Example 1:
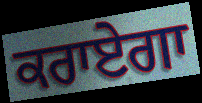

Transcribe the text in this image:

ਕਰਾਏਗਾ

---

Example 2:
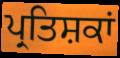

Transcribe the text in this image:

ਪ੍ਰਤਿਸ਼ਕਾਂ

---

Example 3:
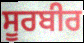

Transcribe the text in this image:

ਸੂਰਬੀਰ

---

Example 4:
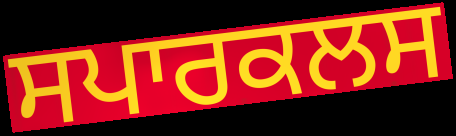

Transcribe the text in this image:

ਸਪਾਰਕਲਸ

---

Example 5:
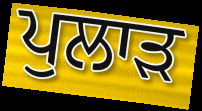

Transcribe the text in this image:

ਪੁਲਾੜ